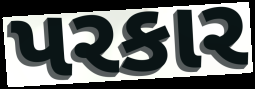
પરકાર